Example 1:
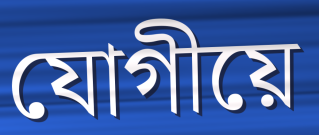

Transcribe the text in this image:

যোগীয়ে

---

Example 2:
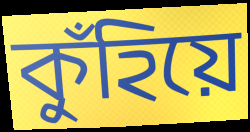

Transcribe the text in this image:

কুঁহিয়ে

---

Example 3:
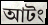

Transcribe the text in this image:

আটং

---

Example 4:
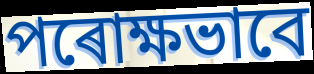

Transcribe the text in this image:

পৰোক্ষভাবে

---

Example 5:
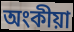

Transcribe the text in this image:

অংকীয়া